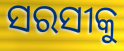
ସରସୀକୁ